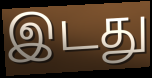
இடது